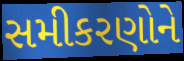
સમીકરણોને